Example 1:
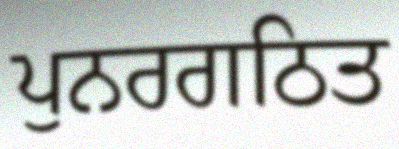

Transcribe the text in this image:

ਪੁਨਰਗਠਿਤ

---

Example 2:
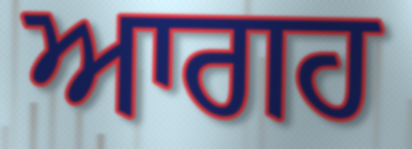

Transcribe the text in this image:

ਆਗਹ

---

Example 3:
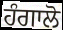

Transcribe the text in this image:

ਹੰਗਾਲੋ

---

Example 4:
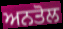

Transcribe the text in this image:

ਅਨਤੋਲ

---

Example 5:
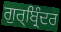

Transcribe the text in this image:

ਗੁਰ੍ਬ੍ਰਿੰਦਰ